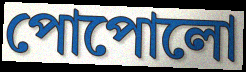
পোপোলো